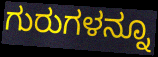
ಗುರುಗಳನ್ನೂ